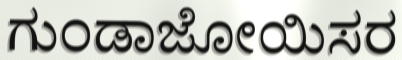
ಗುಂಡಾಜೋಯಿಸರ